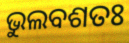
ଭୁଲବଶତଃ